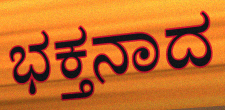
ಭಕ್ತನಾದ